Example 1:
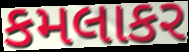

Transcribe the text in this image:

કમલાકર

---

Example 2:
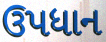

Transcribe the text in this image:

ઉપધાન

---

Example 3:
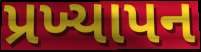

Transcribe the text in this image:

પ્રખ્યાપન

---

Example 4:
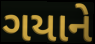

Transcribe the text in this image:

ગયાને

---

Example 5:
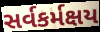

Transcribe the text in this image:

સર્વકર્મક્ષય